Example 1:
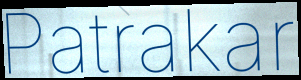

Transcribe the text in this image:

Patrakar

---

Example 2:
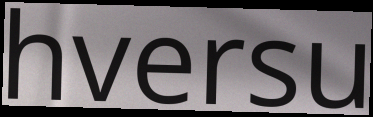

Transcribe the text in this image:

hversu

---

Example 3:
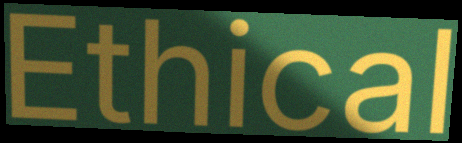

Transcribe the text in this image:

Ethical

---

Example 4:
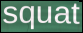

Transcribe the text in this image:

squat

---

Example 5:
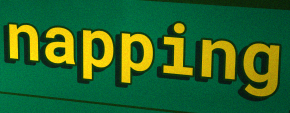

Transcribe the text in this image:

napping